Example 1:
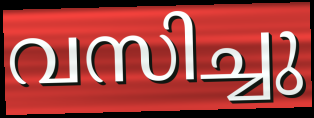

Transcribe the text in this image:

വസിച്ചു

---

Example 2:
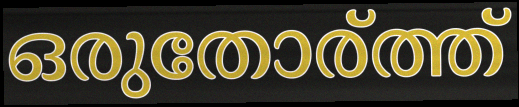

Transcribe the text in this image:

ഒരുതോര്ത്ത്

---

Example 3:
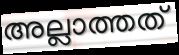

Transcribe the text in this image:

അല്ലാത്തത്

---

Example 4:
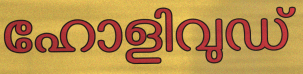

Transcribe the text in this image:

ഹോളിവുഡ്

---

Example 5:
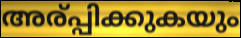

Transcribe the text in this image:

അര്പ്പിക്കുകയും